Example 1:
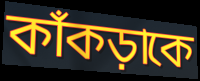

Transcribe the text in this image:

কাঁকড়াকে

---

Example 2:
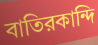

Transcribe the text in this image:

বাতিরকান্দি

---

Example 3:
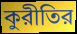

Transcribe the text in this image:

কুরীতির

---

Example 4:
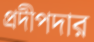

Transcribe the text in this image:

প্রদীপদার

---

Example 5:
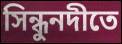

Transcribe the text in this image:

সিন্ধুনদীতে